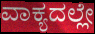
ವಾಕ್ಯದಲ್ಲೇ